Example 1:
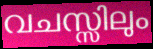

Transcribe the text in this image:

വചസ്സിലും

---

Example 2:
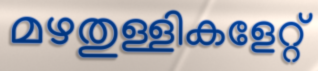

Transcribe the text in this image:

മഴതുള്ളികളേറ്റ്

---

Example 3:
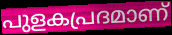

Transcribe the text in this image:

പുളകപ്രദമാണ്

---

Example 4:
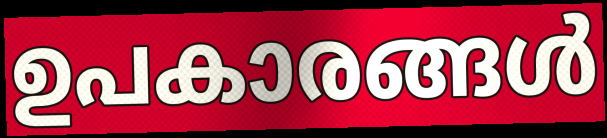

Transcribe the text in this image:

ഉപകാരങ്ങൾ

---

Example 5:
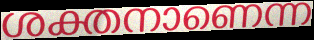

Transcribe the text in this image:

ശക്തനാണെന്ന